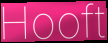
Hooft